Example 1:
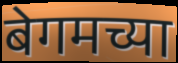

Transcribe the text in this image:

बेगमच्या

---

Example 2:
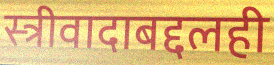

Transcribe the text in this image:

स्त्रीवादाबद्दलही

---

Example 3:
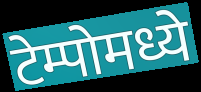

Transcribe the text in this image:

टेम्पोमध्ये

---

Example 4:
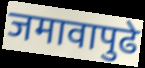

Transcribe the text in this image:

जमावापुढे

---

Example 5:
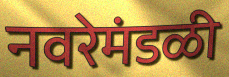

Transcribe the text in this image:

नवरेमंडळी